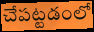
చేపట్టడంలో